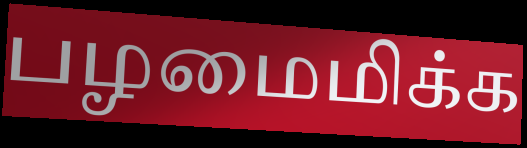
பழமைமிக்க